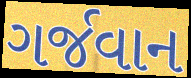
ગર્જવાન